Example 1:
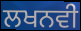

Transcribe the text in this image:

ਲਖਨਵੀ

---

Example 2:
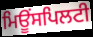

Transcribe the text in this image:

ਮਿਊਂਸਪਿਲਟੀ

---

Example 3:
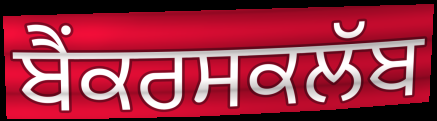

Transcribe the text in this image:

ਬੈਂਕਰਸਕਲੱਬ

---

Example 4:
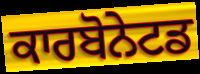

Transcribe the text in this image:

ਕਾਰਬੋਨੇਟਡ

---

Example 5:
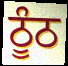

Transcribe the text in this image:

ਠੂੰਠ